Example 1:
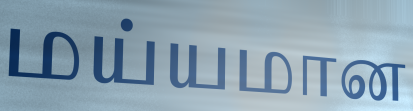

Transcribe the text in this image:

மய்யமான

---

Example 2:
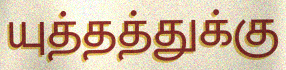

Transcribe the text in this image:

யுத்தத்துக்கு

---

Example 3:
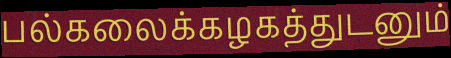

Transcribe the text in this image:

பல்கலைக்கழகத்துடனும்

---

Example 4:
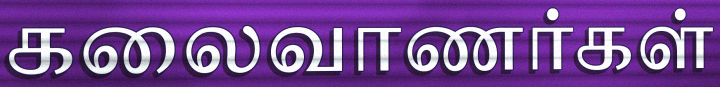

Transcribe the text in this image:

கலைவாணர்கள்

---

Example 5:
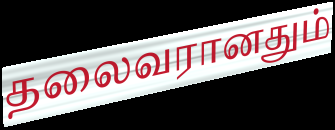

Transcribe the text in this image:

தலைவரானதும்